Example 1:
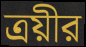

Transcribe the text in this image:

ত্রয়ীর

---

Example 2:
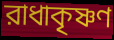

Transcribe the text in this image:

রাধাকৃষ্ণণ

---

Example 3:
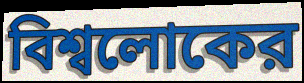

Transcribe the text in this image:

বিশ্বলোকের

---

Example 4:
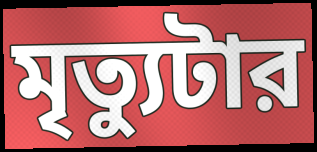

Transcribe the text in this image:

মৃত্যুটার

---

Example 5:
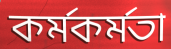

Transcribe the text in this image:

কর্মকর্মতা